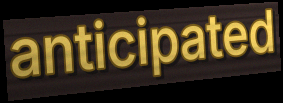
anticipated